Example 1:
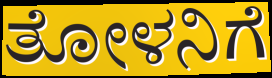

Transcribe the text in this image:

ತೋಳನಿಗೆ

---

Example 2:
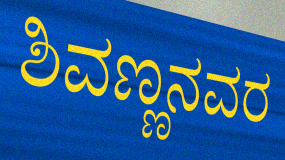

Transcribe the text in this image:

ಶಿವಣ್ಣನವರ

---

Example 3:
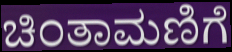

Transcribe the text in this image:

ಚಿಂತಾಮಣಿಗೆ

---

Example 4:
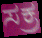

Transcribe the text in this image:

ಸಕ್ರ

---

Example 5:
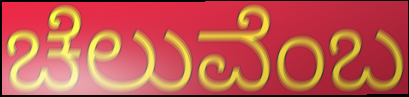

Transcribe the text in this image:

ಚೆಲುವೆಂಬ